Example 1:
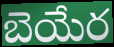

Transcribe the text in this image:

బెయేర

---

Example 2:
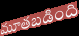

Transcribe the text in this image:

మూతబడింది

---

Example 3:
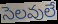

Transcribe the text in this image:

సెలవులే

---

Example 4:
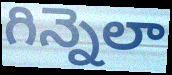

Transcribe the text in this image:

గిన్నెలా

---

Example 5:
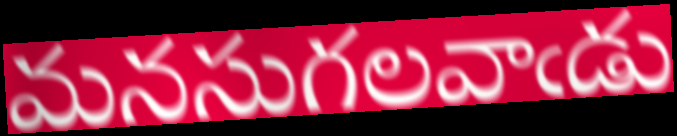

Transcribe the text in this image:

మనసుగలవాఁడు